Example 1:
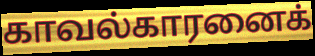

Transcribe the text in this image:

காவல்காரனைக்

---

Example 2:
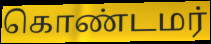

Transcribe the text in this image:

கொண்டமர்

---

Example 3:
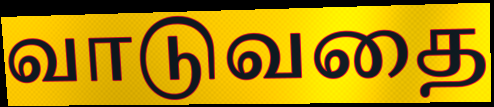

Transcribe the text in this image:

வாடுவதை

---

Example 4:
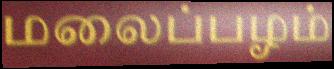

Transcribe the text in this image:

மலைப்பழம்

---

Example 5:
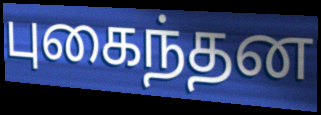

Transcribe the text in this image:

புகைந்தன